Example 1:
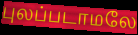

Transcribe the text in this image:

புலப்படாமலே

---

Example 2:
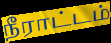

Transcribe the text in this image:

நீராட்டம்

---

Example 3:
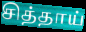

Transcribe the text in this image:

சித்தாய்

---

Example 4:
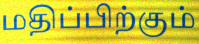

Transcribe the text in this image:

மதிப்பிற்கும்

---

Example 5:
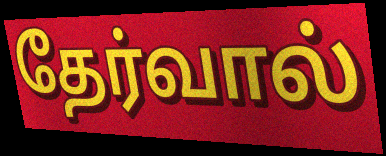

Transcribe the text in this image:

தேர்வால்